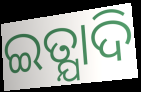
ଇତ୍ଯାଦି